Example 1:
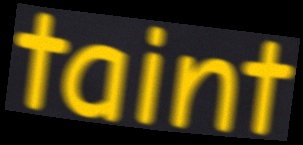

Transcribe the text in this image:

taint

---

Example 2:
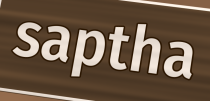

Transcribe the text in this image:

saptha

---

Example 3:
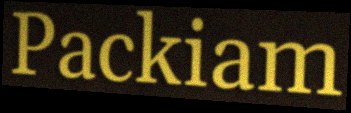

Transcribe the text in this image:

Packiam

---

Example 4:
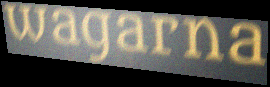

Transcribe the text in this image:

wagarna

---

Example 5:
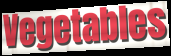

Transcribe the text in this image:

Vegetables